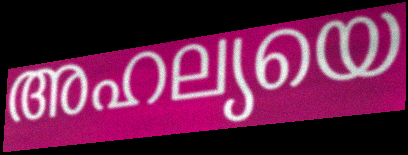
അഹല്യയെ